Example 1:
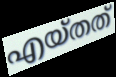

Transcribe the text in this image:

എയ്തത്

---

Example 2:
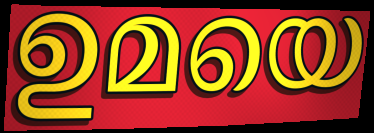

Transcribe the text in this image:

ഉമയെ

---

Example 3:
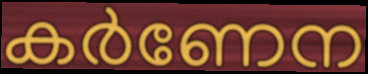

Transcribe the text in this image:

കർണേന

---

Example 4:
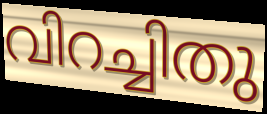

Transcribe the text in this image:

വിറച്ചിതു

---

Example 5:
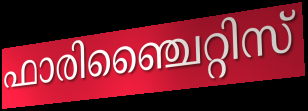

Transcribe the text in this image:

ഫാരിഞ്ചൈറ്റിസ്